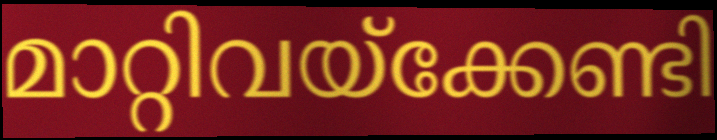
മാറ്റിവയ്ക്കേണ്ടി